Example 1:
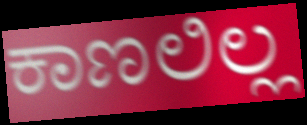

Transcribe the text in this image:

ಕಾಣಲಿಲ್ಲ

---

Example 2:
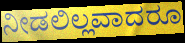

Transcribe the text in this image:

ನೀಡಲಿಲ್ಲವಾದರೂ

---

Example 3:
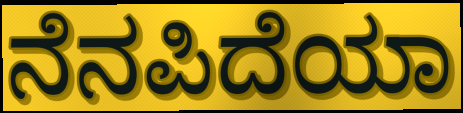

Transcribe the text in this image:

ನೆನಪಿದೆಯಾ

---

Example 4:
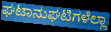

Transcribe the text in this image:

ಘಟಾನುಘಟಿಗಳೆಲ್ಲಾ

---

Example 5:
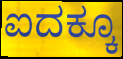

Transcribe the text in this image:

ಐದಕ್ಕೂ